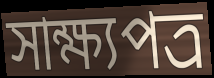
সাক্ষ্যপত্র